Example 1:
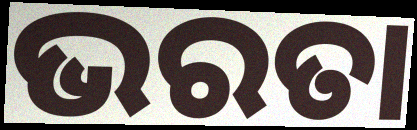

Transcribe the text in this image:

ଭରତା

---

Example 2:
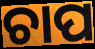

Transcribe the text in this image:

ଚାପ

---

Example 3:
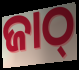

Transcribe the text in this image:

ଜାଠ୍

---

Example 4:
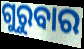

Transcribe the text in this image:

ଗୁରୁବାର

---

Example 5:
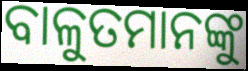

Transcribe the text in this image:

ବାଳୁତମାନଙ୍କୁ